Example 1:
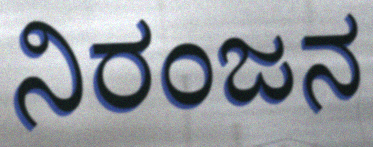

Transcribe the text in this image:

ನಿರಂಜನ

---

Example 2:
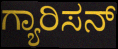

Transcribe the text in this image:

ಗ್ಯಾರಿಸನ್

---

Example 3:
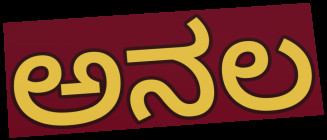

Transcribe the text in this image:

ಅನಲ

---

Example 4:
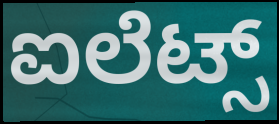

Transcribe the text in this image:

ಐಲೆಟ್ಸ್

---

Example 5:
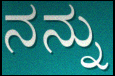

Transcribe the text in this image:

ನನ್ನು